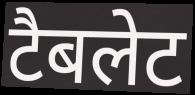
टैबलेट